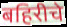
बहिरीचे